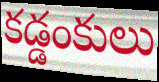
కడ్డంకులు